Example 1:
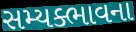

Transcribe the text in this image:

સમ્યક્ભાવના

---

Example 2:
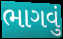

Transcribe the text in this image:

ભાગવું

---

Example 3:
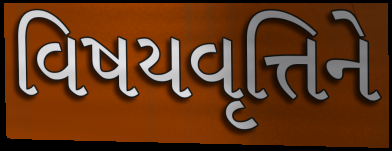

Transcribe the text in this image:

વિષયવૃત્તિને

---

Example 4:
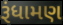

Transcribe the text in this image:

રૂંધામણ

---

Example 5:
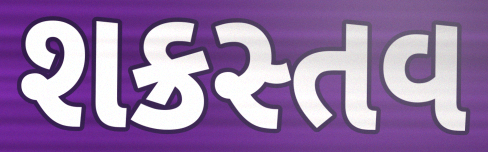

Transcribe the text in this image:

શક્રસ્તવ